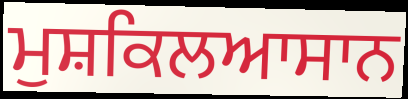
ਮੁਸ਼ਕਿਲਆਸਾਨ